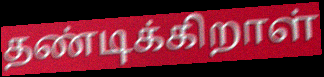
தண்டிக்கிறாள்